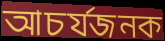
আচৰ্যজনক